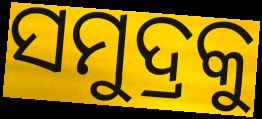
ସମୁଦ୍ରକୁ